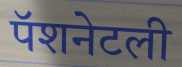
पॅशनेटली